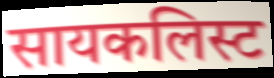
सायकलिस्ट